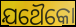
ଯଥୈକୋ